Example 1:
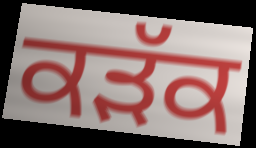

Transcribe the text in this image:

ਕੜੱਕ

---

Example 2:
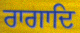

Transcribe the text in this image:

ਰਾਗਾਦਿ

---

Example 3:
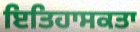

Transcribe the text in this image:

ਇਤਿਹਾਸਕਤਾ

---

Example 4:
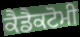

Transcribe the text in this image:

ਕੈਡੈਕਟੋਮੀ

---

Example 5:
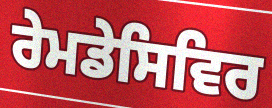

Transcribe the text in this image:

ਰੇਮਡੇਸਿਵਿਰ